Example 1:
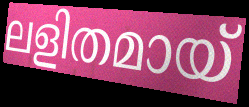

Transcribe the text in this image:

ലളിതമായ്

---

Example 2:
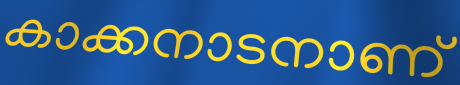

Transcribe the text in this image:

കാക്കനാടനാണ്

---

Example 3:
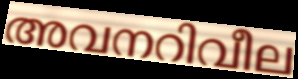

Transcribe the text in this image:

അവനറിവീല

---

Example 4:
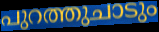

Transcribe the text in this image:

പുറത്തുചാടും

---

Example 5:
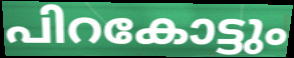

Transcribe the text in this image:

പിറകോട്ടും